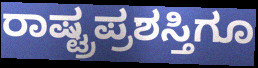
ರಾಷ್ಟ್ರಪ್ರಶಸ್ತಿಗೂ